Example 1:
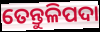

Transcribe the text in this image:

ତେନ୍ତୁଳିପଦା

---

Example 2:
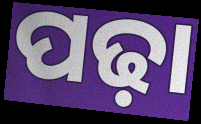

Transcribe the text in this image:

ପଢ଼ା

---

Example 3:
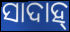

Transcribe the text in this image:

ସାଦାହ୍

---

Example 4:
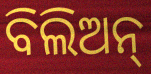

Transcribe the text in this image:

ବିଲିଅନ୍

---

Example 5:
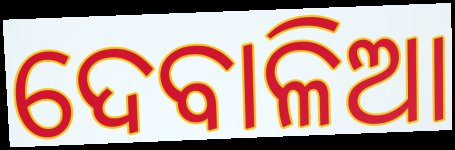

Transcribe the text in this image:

ଦେବାଳିଆ